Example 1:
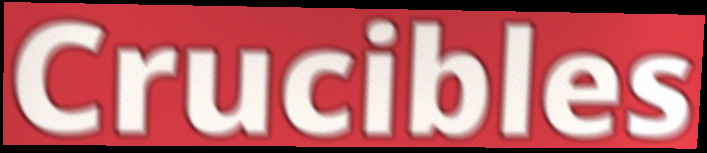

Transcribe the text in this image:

Crucibles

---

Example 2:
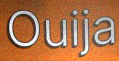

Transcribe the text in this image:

Ouija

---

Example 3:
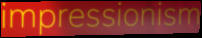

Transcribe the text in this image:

impressionism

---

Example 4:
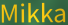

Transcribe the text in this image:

Mikka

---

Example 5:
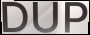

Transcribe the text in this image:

DUP